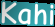
Kahi